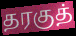
தரகுத்